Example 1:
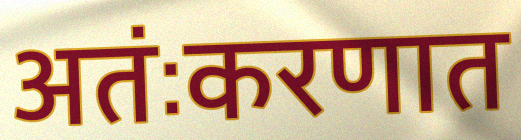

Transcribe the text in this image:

अतंःकरणात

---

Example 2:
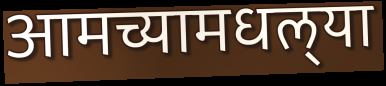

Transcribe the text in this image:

आमच्यामधल्या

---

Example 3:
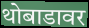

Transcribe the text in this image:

थोबाडावर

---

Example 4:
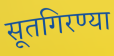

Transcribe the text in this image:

सूतगिरण्या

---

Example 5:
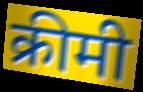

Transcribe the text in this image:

क्रीमी